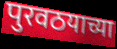
पुरवठयाच्या